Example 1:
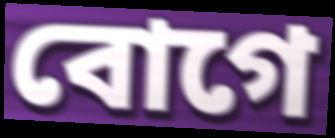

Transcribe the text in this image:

বোগে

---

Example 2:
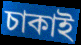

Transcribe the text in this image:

চাকাই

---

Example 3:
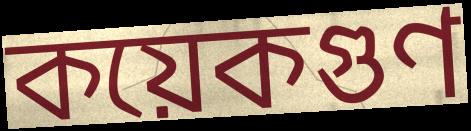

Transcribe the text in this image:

কয়েকগুণ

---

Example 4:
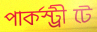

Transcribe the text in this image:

পার্কস্ট্রীটে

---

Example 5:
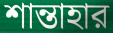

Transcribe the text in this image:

শান্তাহার